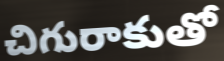
చిగురాకుతో